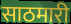
साठमारी